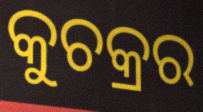
କୁଚକ୍ରର